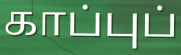
காப்புப்